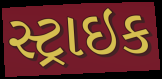
સ્ટ્રાઇક